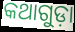
କଥାଗୁଡ଼ା